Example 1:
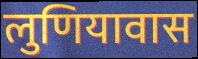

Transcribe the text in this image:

लुणियावास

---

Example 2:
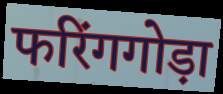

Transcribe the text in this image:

फरिंगगोड़ा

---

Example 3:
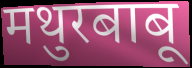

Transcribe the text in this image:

मथुरबाबू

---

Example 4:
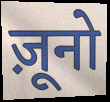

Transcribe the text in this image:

ज़ूनो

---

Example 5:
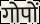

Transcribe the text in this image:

गोपों